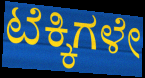
ಟೆಕ್ಕಿಗಳೇ